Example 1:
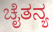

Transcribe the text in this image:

ಚೈತನ್ಯ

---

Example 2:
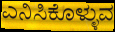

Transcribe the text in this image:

ಎನಿಸಿಕೊಳ್ಳುವ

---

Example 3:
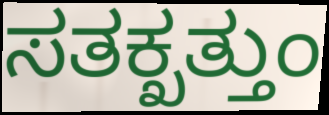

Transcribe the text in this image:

ಸತಕ್ಖತ್ತುಂ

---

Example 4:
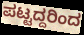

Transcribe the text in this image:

ಪಟ್ಟದ್ದರಿಂದ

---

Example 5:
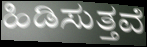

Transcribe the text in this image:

ಹಿಡಿಸುತ್ತವೆ